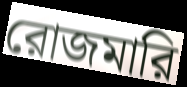
রোজমারি